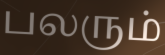
பலரும்